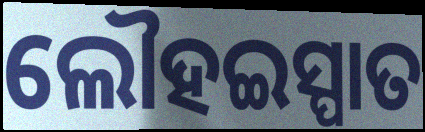
ଲୌହଇସ୍ପାତ